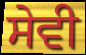
ਸੇਵੀ